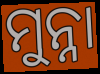
ମୁନ୍ନା